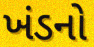
ખંડનો